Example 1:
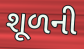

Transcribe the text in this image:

શૂળની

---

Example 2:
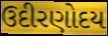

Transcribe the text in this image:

ઉદીરણોદય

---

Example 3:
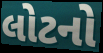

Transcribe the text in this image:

લોટનો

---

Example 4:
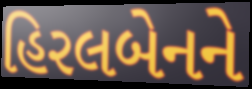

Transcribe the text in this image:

હિરલબેનને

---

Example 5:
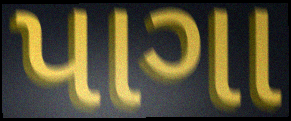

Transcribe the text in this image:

પાગા